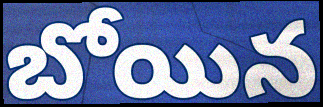
బోయిన